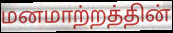
மனமாற்றத்தின்